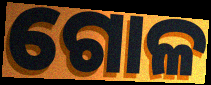
ଗୋଳ